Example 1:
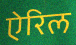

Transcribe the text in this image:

ऐरिल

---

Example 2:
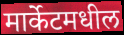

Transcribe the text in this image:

मार्केटमधील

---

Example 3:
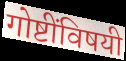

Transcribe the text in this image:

गोष्टींविषयी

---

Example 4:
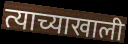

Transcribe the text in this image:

त्याच्याखाली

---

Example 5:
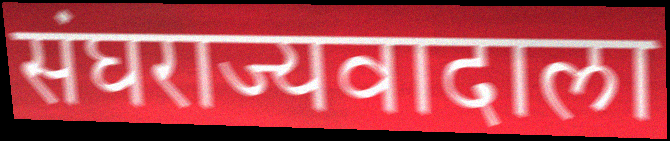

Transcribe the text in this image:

संघराज्यवादाला